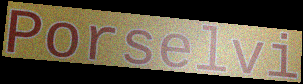
Porselvi